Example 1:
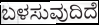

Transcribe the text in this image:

ಬಳಸುವುದಿದೆ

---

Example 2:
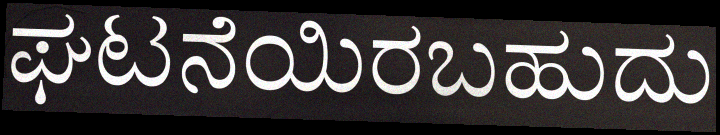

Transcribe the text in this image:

ಘಟನೆಯಿರಬಹುದು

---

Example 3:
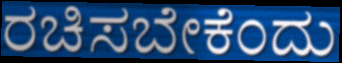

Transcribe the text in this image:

ರಚಿಸಬೇಕೆಂದು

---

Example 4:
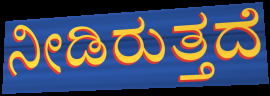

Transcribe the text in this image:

ನೀಡಿರುತ್ತದೆ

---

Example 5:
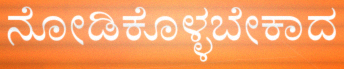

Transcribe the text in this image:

ನೋಡಿಕೊಳ್ಳಬೇಕಾದ